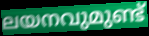
ലയനവുമുണ്ട്